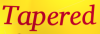
Tapered